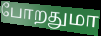
போறதுமா